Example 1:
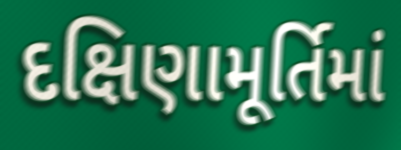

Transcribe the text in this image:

દક્ષિણામૂર્તિમાં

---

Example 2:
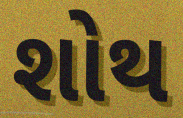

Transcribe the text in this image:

શોથ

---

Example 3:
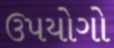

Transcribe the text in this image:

ઉપયોગો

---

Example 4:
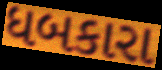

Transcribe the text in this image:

ધબકારા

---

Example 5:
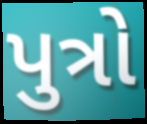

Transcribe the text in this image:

પુત્રો